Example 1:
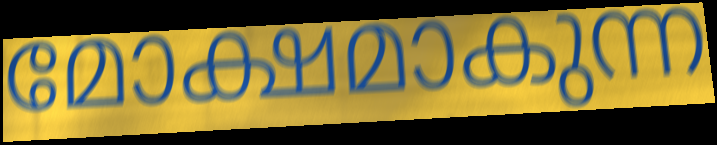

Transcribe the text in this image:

മോക്ഷമാകുന്ന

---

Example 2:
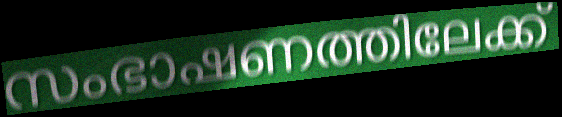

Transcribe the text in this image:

സംഭാഷണത്തിലേക്ക്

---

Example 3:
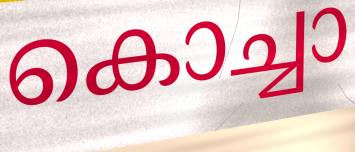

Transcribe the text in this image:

കൊച്ചാ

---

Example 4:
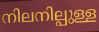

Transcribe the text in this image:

നിലനില്പുള്ള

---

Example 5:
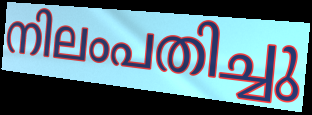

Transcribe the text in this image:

നിലംപതിച്ചു